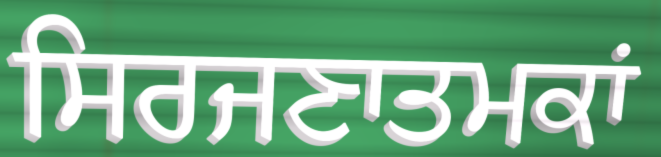
ਸਿਰਜਣਾਤਮਕਾਂ